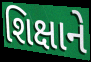
શિક્ષાને